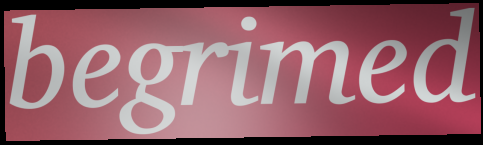
begrimed